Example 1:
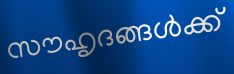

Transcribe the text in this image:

സൗഹൃദങ്ങൾക്ക്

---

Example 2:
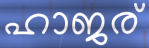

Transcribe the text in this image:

ഹാജര്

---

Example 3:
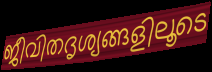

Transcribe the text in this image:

ജീവിതദൃശ്യങ്ങളിലൂടെ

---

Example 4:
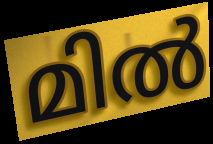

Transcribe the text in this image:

മിൽ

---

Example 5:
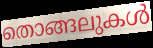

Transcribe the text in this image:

തൊങ്ങലുകൾ